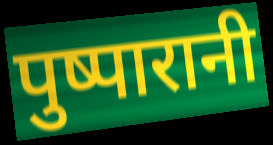
पुष्पारानी